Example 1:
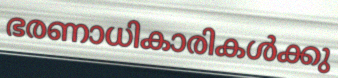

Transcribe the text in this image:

ഭരണാധികാരികൾക്കു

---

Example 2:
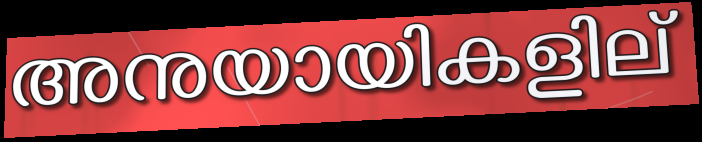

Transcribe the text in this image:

അനുയായികളില്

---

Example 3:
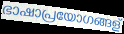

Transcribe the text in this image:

ഭാഷാപ്രയോഗങ്ങള്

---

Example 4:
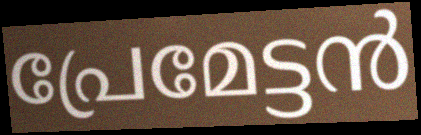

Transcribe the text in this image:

പ്രേമേട്ടൻ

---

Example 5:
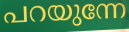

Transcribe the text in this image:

പറയുന്നേ